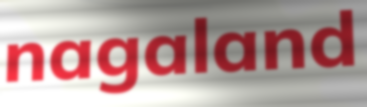
nagaland